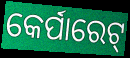
କେର୍ପାରେଟ୍